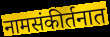
नामसंकीर्तनात